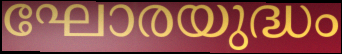
ഘോരയുദ്ധം